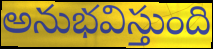
అనుభవిస్తుంది